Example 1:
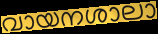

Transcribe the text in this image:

വായനശാലാ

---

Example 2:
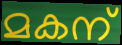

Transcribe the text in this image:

മകന്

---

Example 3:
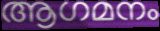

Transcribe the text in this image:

ആഗമനം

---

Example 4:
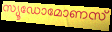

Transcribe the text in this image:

സ്യൂഡോമോണസ്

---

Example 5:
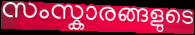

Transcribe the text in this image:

സംസ്കാരങ്ങളുടെ